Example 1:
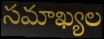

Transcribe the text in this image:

సమాఖ్యల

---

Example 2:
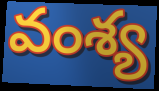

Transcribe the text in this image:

వంశ్య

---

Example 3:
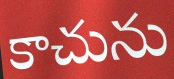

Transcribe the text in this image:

కాచును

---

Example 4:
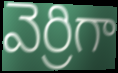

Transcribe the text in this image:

వెర్రిగా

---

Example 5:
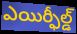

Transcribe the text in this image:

ఎయిర్ఫీల్డ్